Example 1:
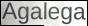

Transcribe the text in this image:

Agalega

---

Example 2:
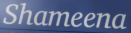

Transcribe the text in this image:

Shameena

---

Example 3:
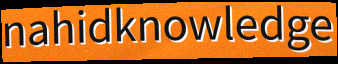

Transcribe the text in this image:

nahidknowledge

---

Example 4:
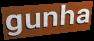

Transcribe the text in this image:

gunha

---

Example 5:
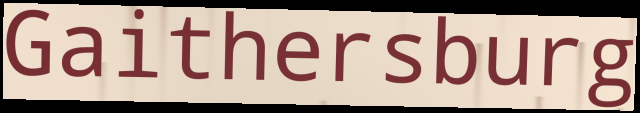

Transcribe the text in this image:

Gaithersburg